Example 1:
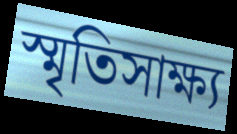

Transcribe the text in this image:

স্মৃতিসাক্ষ্য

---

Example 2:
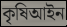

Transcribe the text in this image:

কৃষিআইন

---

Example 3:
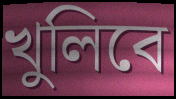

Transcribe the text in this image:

খুলিবে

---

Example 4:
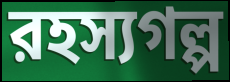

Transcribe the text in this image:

রহস্যগল্প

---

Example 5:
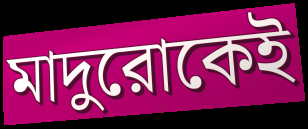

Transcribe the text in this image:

মাদুরোকেই